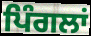
ਪਿੰਗਲਾਂ